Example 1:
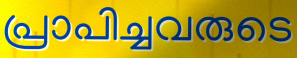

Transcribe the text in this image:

പ്രാപിച്ചവരുടെ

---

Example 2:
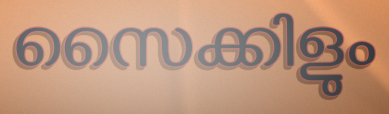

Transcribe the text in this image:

സൈക്കിളും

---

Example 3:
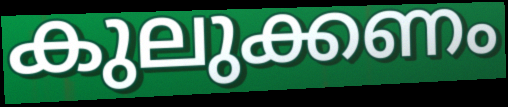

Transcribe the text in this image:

കുലുക്കണം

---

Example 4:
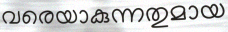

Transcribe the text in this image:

വരെയാകുന്നതുമായ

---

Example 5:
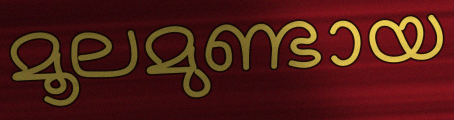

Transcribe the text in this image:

മൂലമുണ്ടായ